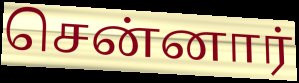
சென்னார்